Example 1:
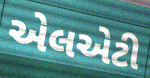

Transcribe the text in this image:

એલએટી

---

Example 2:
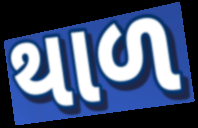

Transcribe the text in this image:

થાળ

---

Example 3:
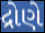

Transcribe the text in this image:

દ્રોણે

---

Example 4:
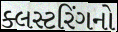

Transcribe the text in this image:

ક્લસ્ટરિંગનો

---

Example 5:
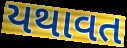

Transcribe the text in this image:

યથાવત